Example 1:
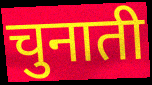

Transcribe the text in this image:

चुनाती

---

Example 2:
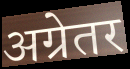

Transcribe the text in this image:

अग्रेतर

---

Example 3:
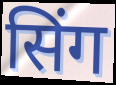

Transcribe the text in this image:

सिंग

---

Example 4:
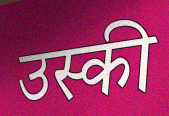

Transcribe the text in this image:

उस्‍की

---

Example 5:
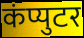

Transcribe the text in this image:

कंप्युटर